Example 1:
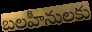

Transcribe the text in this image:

బలహీనులకు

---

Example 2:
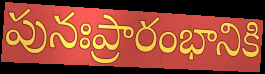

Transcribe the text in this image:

పునఃప్రారంభానికి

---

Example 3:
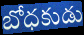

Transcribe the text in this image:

బోధకుడు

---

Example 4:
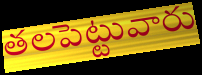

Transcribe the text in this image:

తలపెట్టువారు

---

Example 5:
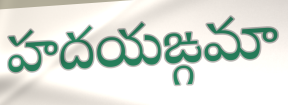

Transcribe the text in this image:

హదయఙ్గమా